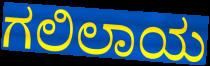
ಗಲಿಲಾಯ